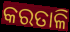
କରତାଳି